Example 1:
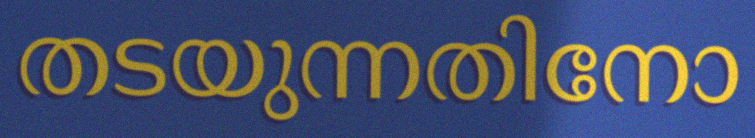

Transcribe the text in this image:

തടയുന്നതിനോ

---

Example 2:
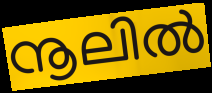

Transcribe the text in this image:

നൂലിൽ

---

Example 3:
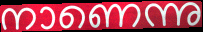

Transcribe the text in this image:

നാണെന്നു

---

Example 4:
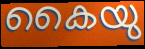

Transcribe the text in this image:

കൈയു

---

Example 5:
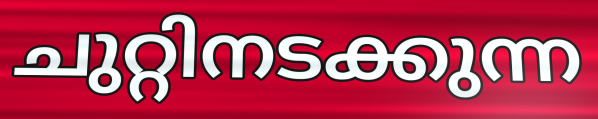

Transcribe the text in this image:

ചുറ്റിനടക്കുന്ന